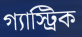
গ্যাস্ট্রিক